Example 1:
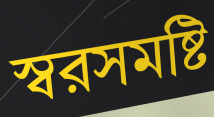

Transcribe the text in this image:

স্বরসমষ্টি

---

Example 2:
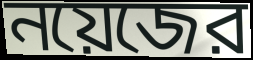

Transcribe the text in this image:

নয়েজের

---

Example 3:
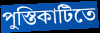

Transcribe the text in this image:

পুস্তিকাটিতে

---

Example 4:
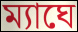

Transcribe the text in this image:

ম্যাঘে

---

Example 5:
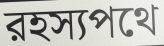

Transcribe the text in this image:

রহস্যপথে